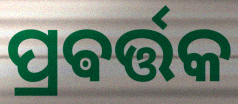
ପ୍ରଵର୍ତ୍ତକ